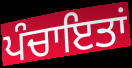
ਪੰਚਾਇਤਾਂ